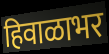
हिवाळाभर